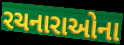
રચનારાઓના